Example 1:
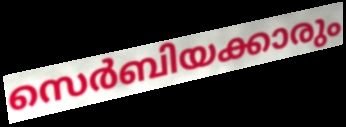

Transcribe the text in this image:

സെർബിയക്കാരും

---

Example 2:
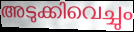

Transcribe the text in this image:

അടുക്കിവെച്ചും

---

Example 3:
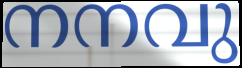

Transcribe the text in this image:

നനവു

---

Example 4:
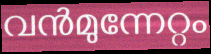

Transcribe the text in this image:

വൻമുന്നേറ്റം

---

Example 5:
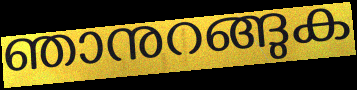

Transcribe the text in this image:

ഞാനുറങ്ങുക